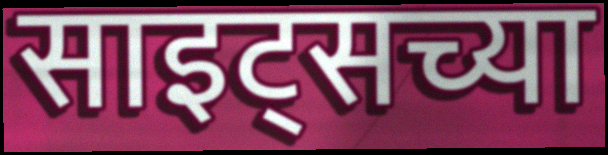
साइट्सच्या